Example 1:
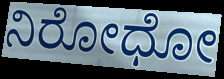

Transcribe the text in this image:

ನಿರೋಧೋ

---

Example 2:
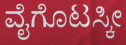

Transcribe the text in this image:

ವೈಗೊಟಸ್ಕೀ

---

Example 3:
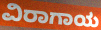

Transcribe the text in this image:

ವಿರಾಗಾಯ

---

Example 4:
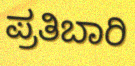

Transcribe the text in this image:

ಪ್ರತಿಬಾರಿ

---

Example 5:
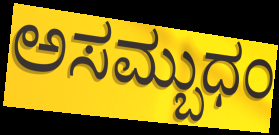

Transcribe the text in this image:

ಅಸಮ್ಬುಧಂ